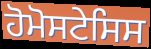
ਹੋਮੋਸਟੇਸਿਸ